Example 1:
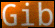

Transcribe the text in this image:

Gib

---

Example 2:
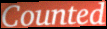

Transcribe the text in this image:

Counted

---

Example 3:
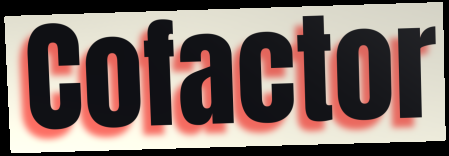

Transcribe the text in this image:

Cofactor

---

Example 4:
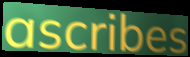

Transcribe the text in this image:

ascribes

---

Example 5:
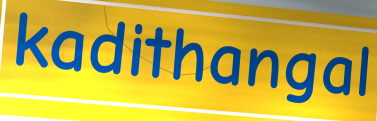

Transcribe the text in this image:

kadithangal